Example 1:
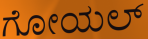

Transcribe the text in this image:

ಗೋಯಲ್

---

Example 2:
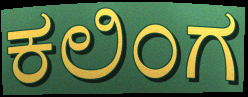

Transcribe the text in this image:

ಕಲಿಂಗ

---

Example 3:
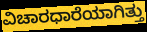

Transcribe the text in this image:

ವಿಚಾರಧಾರೆಯಾಗಿತ್ತು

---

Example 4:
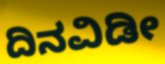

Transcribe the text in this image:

ದಿನವಿಡೀ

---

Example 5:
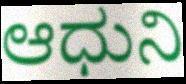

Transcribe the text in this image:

ಆಧುನಿ